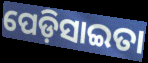
ପେଡ଼ିସାଇତା